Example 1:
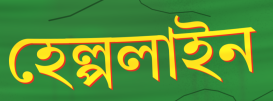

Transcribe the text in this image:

হেল্পলাইন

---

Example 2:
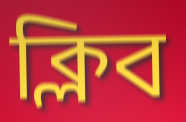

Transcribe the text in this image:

ক্লিব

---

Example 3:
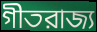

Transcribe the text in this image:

গীতরাজ্য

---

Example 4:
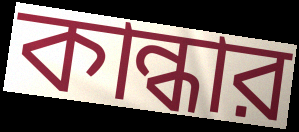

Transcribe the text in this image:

কান্ধার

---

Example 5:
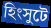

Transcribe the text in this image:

হিংসুটে